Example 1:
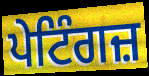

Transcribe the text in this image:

ਪੇਟਿੰਗਜ਼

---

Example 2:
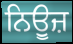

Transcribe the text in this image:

ਨਿਉੂਜ਼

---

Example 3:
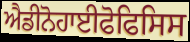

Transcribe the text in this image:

ਐਡੀਨੋਹਾਈਫੋਫਿਸਿਸ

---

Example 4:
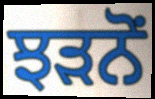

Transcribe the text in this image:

ਝੜਨੋਂ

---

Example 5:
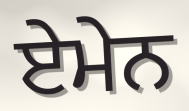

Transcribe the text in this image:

ਏਮੇਨ